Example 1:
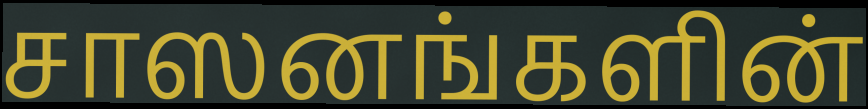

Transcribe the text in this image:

சாஸனங்களின்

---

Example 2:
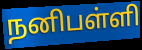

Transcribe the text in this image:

நனிபள்ளி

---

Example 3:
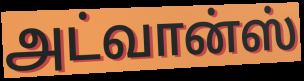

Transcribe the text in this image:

அட்வான்ஸ்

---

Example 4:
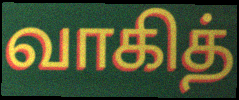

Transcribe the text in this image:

வாகித்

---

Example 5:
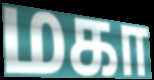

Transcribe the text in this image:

மகா